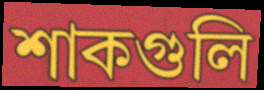
শাকগুলি